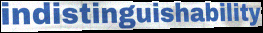
indistinguishability